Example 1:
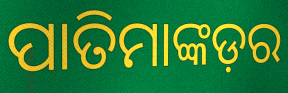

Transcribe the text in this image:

ପାତିମାଙ୍କଡ଼ର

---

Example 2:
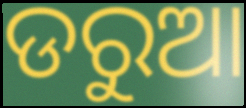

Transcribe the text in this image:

ଡରୁଆ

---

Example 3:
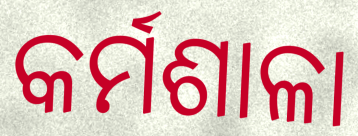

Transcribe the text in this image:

କର୍ମଶାଳା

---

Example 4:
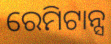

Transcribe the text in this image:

ରେମିଟାନ୍ସ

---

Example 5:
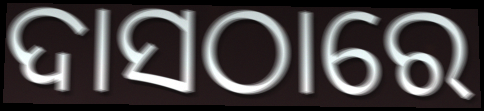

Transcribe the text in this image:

ଦାସଠାରେ